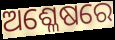
ଅଶ୍ଳେଷରେ